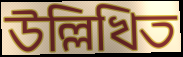
উল্লিখিত